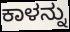
ಕಾಳನ್ನು